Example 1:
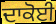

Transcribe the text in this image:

ਦਾਕੋਈ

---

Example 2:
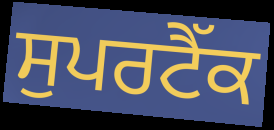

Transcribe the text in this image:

ਸੁਪਰਟੈੱਕ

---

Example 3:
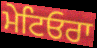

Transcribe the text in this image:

ਮੇਟਿਓਰਾ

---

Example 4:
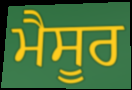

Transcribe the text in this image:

ਮੈਸੂਰ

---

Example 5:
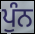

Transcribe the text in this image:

ਪੁੰਨ